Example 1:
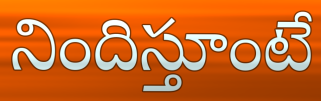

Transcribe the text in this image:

నిందిస్తూంటే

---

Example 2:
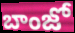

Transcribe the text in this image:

బాంజో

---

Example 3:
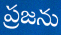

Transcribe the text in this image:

ప్రజను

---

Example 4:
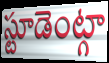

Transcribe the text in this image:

స్టూడెంట్గా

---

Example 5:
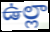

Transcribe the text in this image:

ఉల్లా